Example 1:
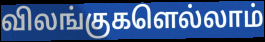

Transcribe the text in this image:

விலங்குகளெல்லாம்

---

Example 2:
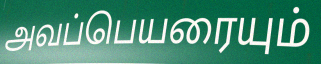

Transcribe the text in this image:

அவப்பெயரையும்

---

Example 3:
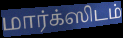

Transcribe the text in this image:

மார்க்ஸிடம்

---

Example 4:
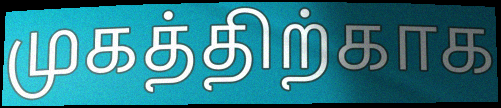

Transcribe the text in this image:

முகத்திற்காக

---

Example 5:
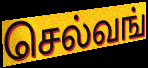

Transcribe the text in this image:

செல்வங்